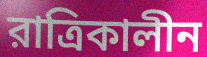
রাত্রিকালীন